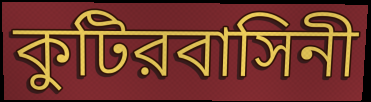
কুটিরবাসিনী